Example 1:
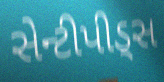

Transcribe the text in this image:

સેન્ટીપીડ્સ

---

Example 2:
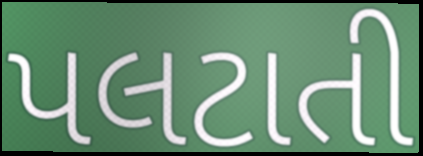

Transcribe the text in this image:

પલટાતી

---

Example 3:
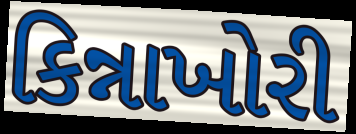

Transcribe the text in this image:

કિન્નાખોરી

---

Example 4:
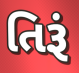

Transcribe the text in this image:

તિરૂં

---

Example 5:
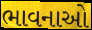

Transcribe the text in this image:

ભાવનાઓ